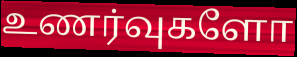
உணர்வுகளோ